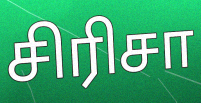
சிரிசா